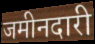
जमीनदारी